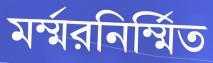
মর্ম্মরনির্ম্মিত